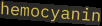
hemocyanin